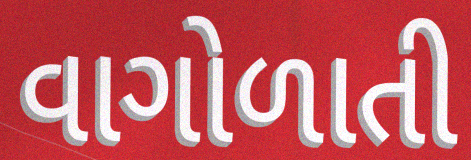
વાગોળાતી